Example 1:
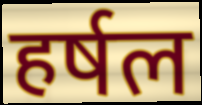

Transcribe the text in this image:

हर्षल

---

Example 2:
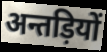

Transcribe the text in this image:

अन्तड़ियों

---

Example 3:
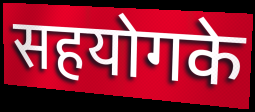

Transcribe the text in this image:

सहयोगके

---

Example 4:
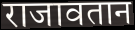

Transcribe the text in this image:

राजावतान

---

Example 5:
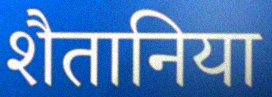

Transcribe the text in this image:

शैतानिया